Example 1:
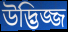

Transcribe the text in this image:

উদ্ভিজ্জ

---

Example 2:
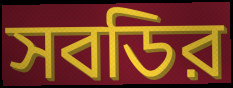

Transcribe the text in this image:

সবডির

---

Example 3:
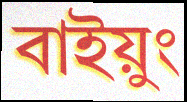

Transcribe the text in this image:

বাইয়ুং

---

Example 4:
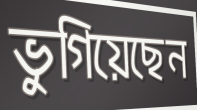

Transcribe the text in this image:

ভুগিয়েছেন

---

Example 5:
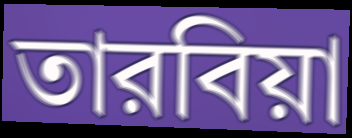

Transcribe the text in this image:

তারবিয়া